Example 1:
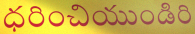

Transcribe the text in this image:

ధరించియుండిరి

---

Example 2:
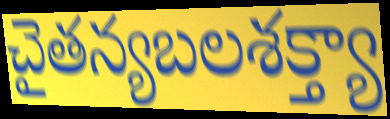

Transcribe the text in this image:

చైతన్యబలశక్త్యా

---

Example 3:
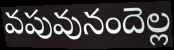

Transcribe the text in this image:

వపువునందెల్ల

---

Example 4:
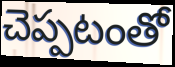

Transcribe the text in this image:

చెప్పటంతో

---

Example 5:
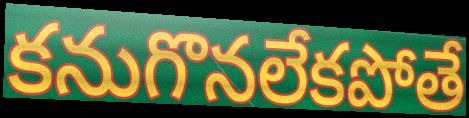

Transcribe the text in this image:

కనుగొనలేకపోతే